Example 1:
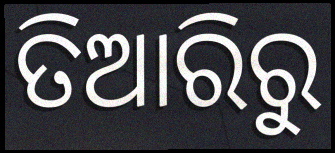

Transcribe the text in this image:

ତିଆରିରୁ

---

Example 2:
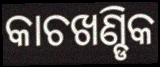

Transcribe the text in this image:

କାଚଖଣ୍ଡିକ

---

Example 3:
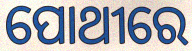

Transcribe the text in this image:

ପୋଥୀରେ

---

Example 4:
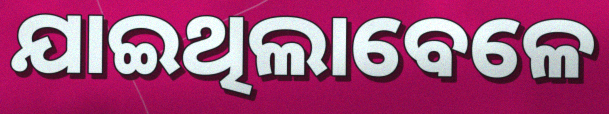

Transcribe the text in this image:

ଯାଇଥିଲାବେଳେ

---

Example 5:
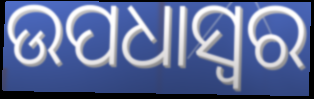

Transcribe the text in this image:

ଉପଧାସ୍ୱର